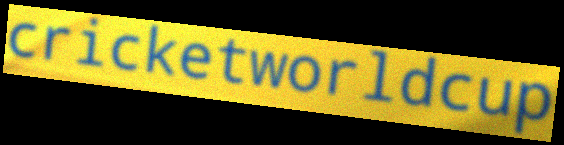
cricketworldcup